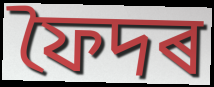
ফৈদৰ